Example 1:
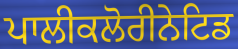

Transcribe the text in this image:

ਪਾਲੀਕਲੋਰੀਨੇਟਿਡ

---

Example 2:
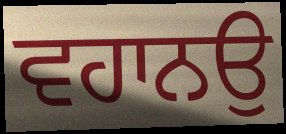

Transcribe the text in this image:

ਵਹਾਨਉ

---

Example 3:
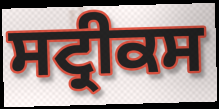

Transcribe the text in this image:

ਸਟ੍ਰੀਕਸ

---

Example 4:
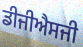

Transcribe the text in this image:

ਡੀਜੀਐਸਜੀ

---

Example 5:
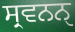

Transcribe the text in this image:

ਸ੍ਰਵਨਨੑ